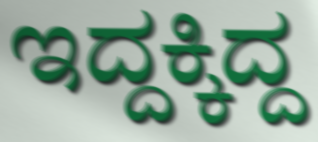
ಇದ್ದಕ್ಕಿದ್ದ